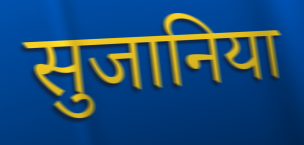
सुजानिया